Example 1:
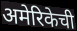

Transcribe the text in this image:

अमेरिकेची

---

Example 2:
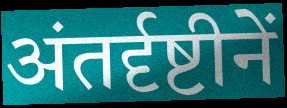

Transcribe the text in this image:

अंतर्दृष्टीनें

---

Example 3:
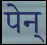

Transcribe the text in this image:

पेन्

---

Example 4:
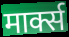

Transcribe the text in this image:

मार्क्स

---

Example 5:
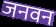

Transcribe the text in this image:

जनवन